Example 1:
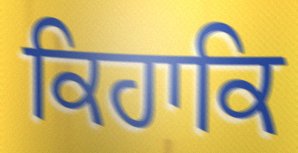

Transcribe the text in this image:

ਕਿਹਾਕਿ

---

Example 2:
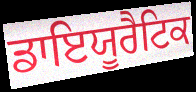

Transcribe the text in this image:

ਡਾਇਯੂਰੈਟਿਕ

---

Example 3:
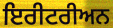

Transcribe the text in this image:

ਇਰੀਟਰੀਅਨ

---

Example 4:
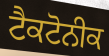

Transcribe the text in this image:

ਟੈਕਟੋਨੀਕ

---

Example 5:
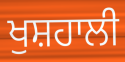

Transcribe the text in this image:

ਖੁਸ਼ਹਾਲੀ